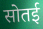
सोतई